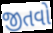
જીતવો